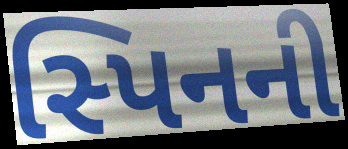
સ્પિનની